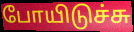
போயிடுச்சு